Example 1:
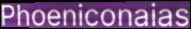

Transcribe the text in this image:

Phoeniconaias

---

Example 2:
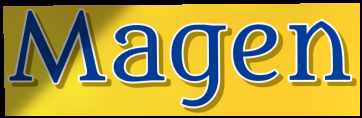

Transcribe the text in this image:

Magen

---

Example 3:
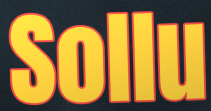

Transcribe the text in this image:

Sollu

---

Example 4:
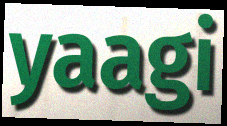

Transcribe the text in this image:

yaagi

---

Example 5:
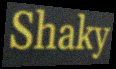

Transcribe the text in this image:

Shaky